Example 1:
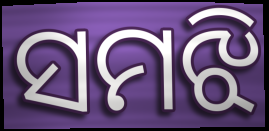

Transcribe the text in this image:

ସମଝି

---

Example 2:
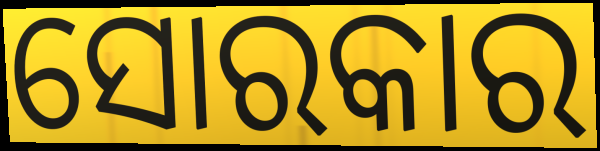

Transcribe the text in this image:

ସୋରକାର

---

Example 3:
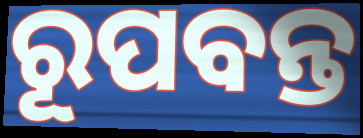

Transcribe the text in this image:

ରୂପବନ୍ତ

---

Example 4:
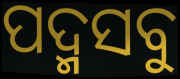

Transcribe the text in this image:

ପଦ୍ମସବୁ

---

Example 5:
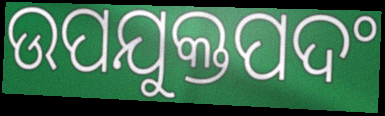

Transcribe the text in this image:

ଉପଯୁକ୍ତପଦଂ